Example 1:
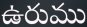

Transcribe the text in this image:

ఉరుము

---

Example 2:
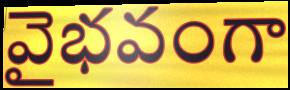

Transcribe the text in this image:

వైభవంగా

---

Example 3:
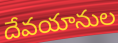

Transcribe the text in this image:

దేవయానుల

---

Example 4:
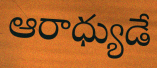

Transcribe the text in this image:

ఆరాధ్యుడే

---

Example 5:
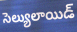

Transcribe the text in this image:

సెల్యులాయిడ్